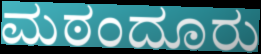
ಮಠಂದೂರು